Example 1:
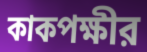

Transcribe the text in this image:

কাকপক্ষীর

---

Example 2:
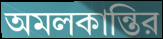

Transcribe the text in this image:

অমলকান্তির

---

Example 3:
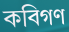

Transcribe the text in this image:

কবিগণ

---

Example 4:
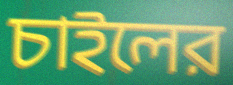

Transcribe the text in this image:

চাইলের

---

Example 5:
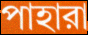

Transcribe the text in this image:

পাহারা